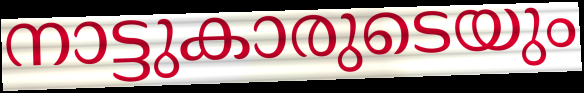
നാട്ടുകാരുടെയും